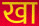
खा